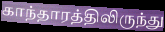
காந்தாரத்திலிருந்து